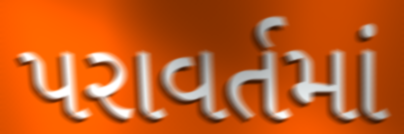
પરાવર્તમાં